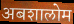
अबशालोम